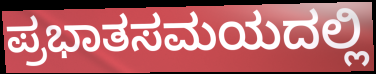
ಪ್ರಭಾತಸಮಯದಲ್ಲಿ